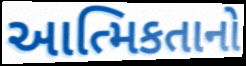
આત્મિકતાનો